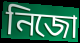
নিজো